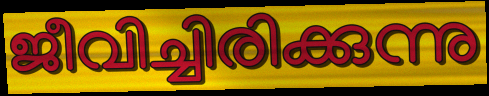
ജീവിച്ചിരിക്കുന്നു